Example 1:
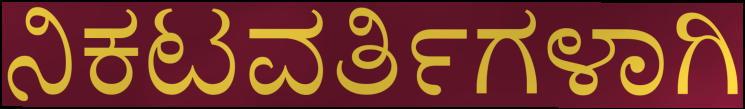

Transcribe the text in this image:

ನಿಕಟವರ್ತಿಗಳಾಗಿ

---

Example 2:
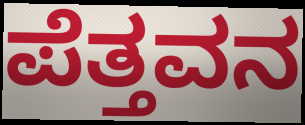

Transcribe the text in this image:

ಪೆತ್ತವನ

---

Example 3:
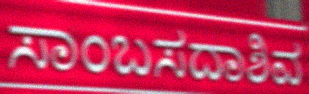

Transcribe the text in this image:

ಸಾಂಬಸದಾಶಿವ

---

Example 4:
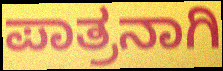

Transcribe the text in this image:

ಪಾತ್ರನಾಗಿ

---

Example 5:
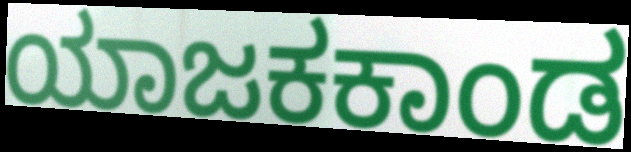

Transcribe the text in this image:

ಯಾಜಕಕಾಂಡ